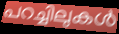
പറച്ചിലുകൾ